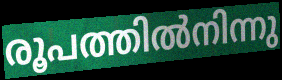
രൂപത്തിൽനിന്നു